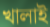
খালাই